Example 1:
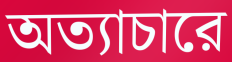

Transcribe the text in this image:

অত্যাচারে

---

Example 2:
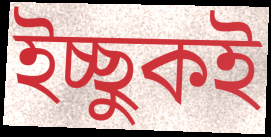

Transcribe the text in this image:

ইচ্ছুকই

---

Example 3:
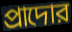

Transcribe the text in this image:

প্রাদোর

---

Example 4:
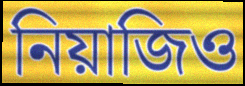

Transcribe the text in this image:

নিয়াজিও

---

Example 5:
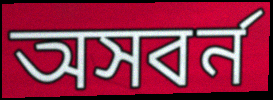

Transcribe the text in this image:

অসবর্ন